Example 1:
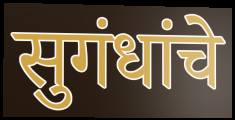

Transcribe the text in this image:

सुगंधांचे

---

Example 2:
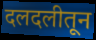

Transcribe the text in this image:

दलदलीतून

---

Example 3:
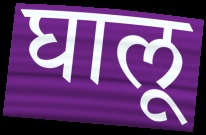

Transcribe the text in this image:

घालू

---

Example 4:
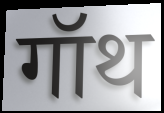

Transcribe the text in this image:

गॉथ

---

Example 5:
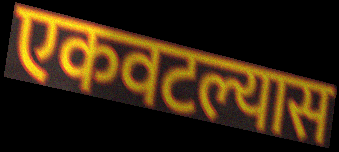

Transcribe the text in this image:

एकवटल्यास